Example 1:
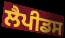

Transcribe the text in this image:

ਲੈਪੀਡਸ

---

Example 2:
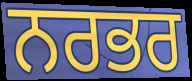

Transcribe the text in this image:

ਨਰਭਰ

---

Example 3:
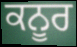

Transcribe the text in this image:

ਕਨੂਰ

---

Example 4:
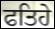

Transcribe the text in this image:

ਫਤਿਹੇ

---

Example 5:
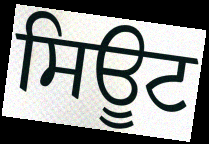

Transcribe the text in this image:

ਸਿਊਟ